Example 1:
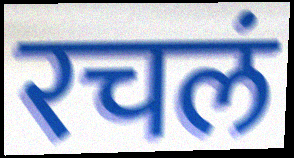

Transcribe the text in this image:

रचलं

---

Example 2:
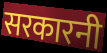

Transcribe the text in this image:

सरकारनी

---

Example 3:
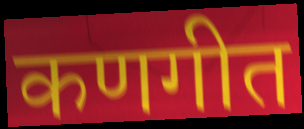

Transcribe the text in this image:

कणगीत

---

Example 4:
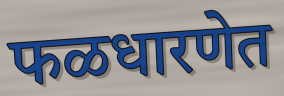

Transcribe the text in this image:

फळधारणेत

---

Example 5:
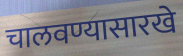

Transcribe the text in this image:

चालवण्यासारखे